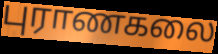
புராணகலை